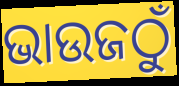
ଭାଉଜଠୁଁ